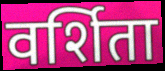
वर्शिता